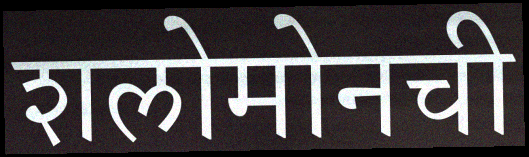
शलोमोनची